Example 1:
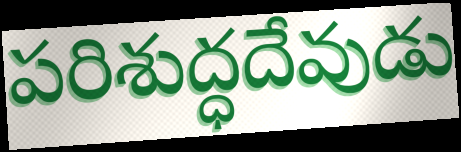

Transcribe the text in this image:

పరిశుద్ధదేవుడు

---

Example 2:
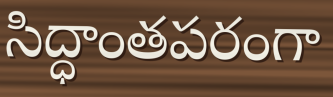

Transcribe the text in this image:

సిద్ధాంతపరంగా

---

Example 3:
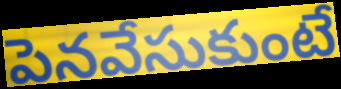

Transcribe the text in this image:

పెనవేసుకుంటే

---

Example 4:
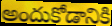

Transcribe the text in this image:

అందుకోడానికి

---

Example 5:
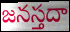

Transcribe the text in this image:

జనస్తదా